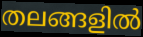
തലങ്ങളിൽ